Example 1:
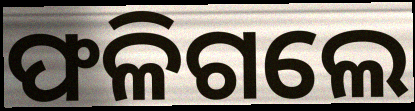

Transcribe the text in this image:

ଫଳିଗଲେ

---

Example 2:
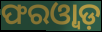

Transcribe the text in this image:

ଫରଓ୍ୱାଡ଼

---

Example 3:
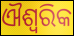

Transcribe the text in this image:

ଐଶ୍ୱରିକ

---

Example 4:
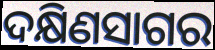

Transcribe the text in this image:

ଦକ୍ଷିଣସାଗର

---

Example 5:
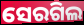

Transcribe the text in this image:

ସେରଗିଲ